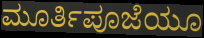
ಮೂರ್ತಿಪೂಜೆಯೂ